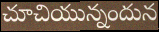
చూచియున్నందున